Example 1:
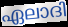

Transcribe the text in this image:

ഏലാദി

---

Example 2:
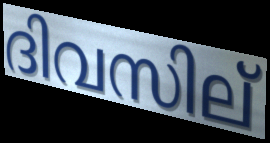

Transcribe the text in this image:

ദിവസില്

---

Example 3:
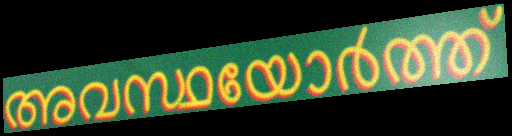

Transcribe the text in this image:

അവസ്ഥയോർത്ത്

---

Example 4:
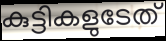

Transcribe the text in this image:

കുട്ടികളുടേത്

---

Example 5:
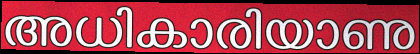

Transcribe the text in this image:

അധികാരിയാണു